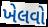
ખેલવો